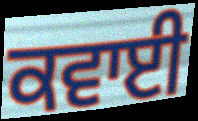
ਕਵਾਈ